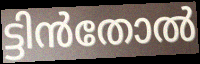
ട്ടിൻതോൽ